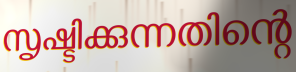
സൃഷ്ടിക്കുന്നതിന്റെ